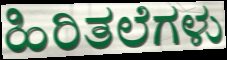
ಹಿರಿತಲೆಗಳು